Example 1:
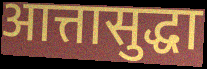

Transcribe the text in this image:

आत्तासुद्धा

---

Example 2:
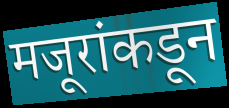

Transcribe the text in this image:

मजूरांकडून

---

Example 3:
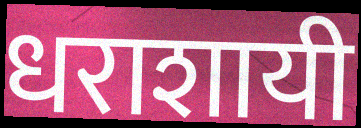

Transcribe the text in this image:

धराशायी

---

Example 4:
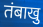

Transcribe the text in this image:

तंबाखु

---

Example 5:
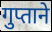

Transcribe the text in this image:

गुप्ताने